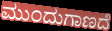
ಮುಂದುಗಾಣದೆ